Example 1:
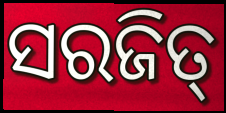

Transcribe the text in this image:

ସରଜିତ୍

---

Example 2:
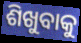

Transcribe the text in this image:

ଶିଖୁବାକୁ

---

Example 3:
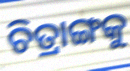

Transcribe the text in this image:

ଚିତ୍ରାଙ୍ଗକୁ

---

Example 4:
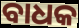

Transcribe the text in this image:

ବାଧକ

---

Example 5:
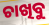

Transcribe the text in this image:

ଚାଖିବୁ